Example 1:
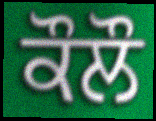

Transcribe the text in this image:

ਕੌਲੌ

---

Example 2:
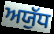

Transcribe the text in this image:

ਅਯੁੱਧ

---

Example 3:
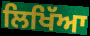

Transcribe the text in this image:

ਲਿਖਿੱਆ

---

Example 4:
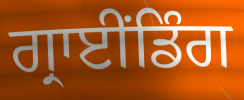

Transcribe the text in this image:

ਗ੍ਰਾਈਂਡਿੰਗ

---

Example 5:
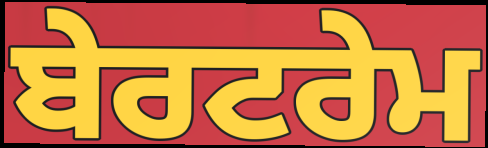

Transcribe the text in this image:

ਬੇਰਟਰੇਮ